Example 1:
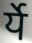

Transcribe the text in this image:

र्ये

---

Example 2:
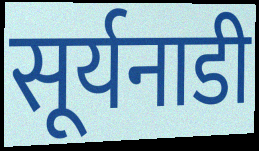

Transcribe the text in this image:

सूर्यनाडी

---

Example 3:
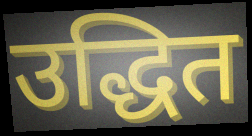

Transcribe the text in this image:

उद्धित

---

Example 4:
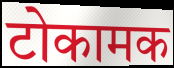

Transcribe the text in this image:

टोकामक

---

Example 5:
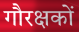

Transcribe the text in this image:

गौरक्षकों